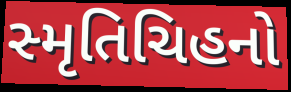
સ્મૃતિચિહનો